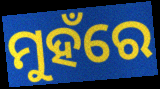
ମୁହଁରେ